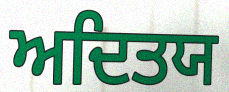
ਅਦਿਤਯ